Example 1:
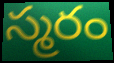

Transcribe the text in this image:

స్మరం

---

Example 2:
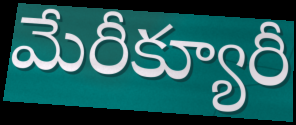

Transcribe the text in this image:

మేరీక్యూరీ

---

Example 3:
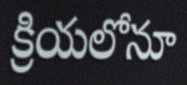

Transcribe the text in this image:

క్రియలోనూ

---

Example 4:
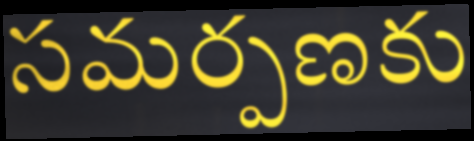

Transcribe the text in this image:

సమర్పణకు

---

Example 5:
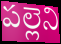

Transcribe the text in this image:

పల్లెని